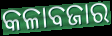
କଳାବଜାର